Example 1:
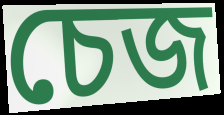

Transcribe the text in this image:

চেজ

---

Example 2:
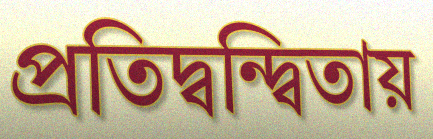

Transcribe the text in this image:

প্রতিদ্বন্দ্বিতায়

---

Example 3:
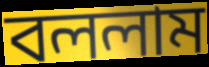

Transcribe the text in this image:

বললাম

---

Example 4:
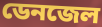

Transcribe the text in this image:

ডেনজেল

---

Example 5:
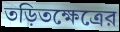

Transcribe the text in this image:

তড়িতক্ষেত্রের